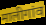
मालीगांव